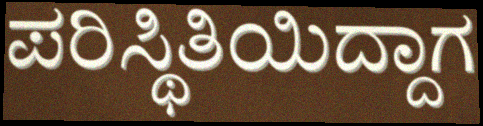
ಪರಿಸ್ಥಿತಿಯಿದ್ದಾಗ